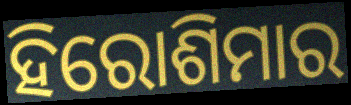
ହିରୋଶିମାର